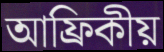
আফ্ৰিকীয়